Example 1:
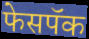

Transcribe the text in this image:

फेसपॅक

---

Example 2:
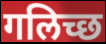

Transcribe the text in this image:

गलिच्छ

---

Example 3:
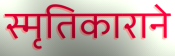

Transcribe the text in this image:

स्मृतिकाराने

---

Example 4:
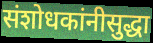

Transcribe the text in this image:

संशोधकांनीसुद्धा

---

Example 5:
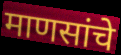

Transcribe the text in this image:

माणसांचे